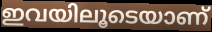
ഇവയിലൂടെയാണ്